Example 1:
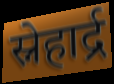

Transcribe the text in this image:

स्नेहार्द्र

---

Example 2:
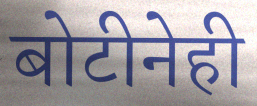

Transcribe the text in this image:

बोटीनेही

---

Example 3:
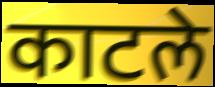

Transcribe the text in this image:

काटले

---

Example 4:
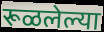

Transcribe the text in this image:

रूळलेल्या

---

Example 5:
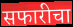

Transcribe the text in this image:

सफारीचा